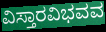
ವಿಸ್ತಾರವಿಭವವ